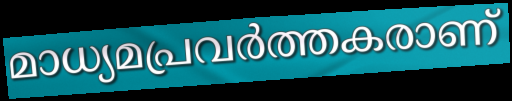
മാധ്യമപ്രവർത്തകരാണ്